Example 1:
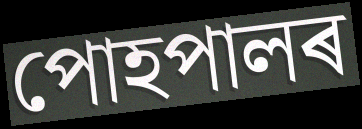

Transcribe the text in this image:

পোহপালৰ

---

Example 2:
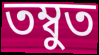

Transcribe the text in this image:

তম্বুত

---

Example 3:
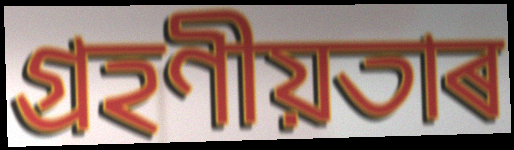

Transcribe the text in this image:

গ্ৰহণীয়তাৰ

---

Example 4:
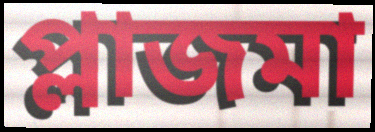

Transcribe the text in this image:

প্লাজমা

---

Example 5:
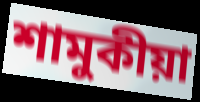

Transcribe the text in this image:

শামুকীয়া